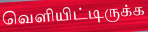
வெளியிட்டிருக்க